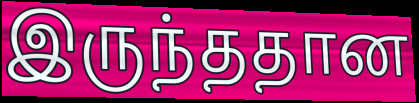
இருந்ததான